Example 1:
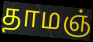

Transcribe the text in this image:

தாமஞ்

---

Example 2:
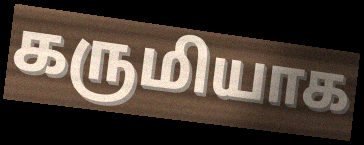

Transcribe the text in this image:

கருமியாக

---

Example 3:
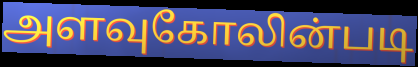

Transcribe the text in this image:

அளவுகோலின்படி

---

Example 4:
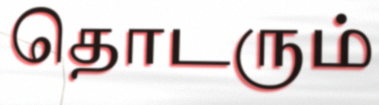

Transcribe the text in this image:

தொடரும்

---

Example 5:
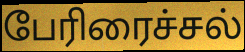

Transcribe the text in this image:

பேரிரைச்சல்